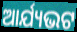
ଆର୍ଯ୍ୟଭଟ